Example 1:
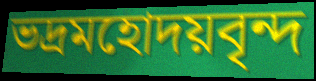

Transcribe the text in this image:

ভদ্রমহোদয়বৃন্দ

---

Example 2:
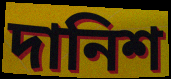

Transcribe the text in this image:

দানিশ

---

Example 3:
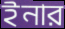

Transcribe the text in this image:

ইনার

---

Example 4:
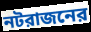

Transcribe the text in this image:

নটরাজনের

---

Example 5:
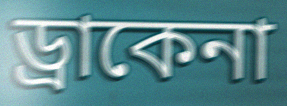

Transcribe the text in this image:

ড্রাকেনা